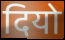
दियो